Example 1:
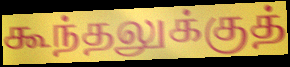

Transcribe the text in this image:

கூந்தலுக்குத்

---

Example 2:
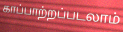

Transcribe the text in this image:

காப்பாற்றப்படலாம்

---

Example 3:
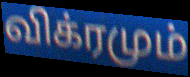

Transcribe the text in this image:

விக்ரமும்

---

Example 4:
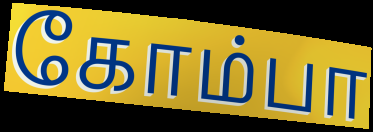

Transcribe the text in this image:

கோம்பா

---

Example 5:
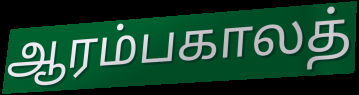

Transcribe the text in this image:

ஆரம்பகாலத்